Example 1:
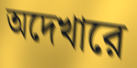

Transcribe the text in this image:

অদেখারে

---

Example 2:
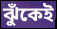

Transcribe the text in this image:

ঝুঁকেই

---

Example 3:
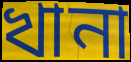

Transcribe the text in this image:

খানা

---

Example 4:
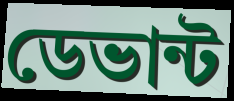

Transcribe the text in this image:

ডেভান্ট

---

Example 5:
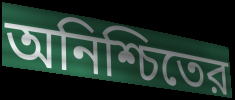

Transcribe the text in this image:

অনিশ্চিতের